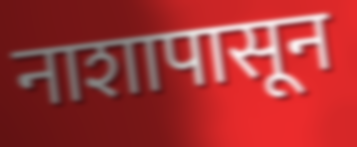
नाशापासून